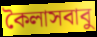
কৈলাসবাবু